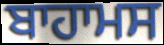
ਬਾਹਾਮਸ